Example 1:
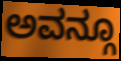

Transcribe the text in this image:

ಅವನ್ಗೂ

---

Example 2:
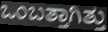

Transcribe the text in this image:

ಒಂಬತ್ತಾಗಿತ್ತು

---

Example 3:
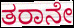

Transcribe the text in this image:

ತರಾನೇ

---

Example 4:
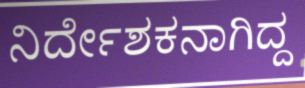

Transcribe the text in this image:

ನಿರ್ದೇಶಕನಾಗಿದ್ದ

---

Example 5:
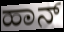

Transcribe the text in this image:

ಹಾನ್